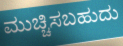
ಮುಚ್ಚಿಸಬಹುದು